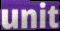
unit